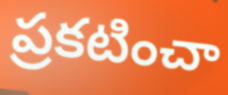
ప్రకటించా